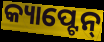
କ୍ୟାପ୍ଟେନ୍